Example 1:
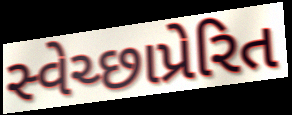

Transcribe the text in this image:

સ્વેચ્છાપ્રેરિત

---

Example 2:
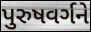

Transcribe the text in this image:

પુરુષવર્ગને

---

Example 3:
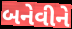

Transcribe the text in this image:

બનેવીને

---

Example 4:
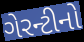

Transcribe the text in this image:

ગેરન્ટીનો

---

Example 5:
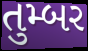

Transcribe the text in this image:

તુમ્બર